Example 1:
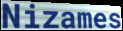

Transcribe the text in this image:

Nizames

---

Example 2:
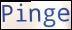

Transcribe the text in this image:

Pinge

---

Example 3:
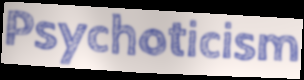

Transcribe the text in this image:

Psychoticism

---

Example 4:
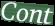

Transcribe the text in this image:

Cont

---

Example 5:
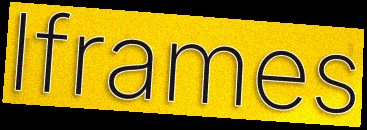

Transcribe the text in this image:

Iframes